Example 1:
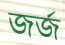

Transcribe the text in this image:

জর্জ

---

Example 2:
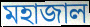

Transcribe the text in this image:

মহাজাল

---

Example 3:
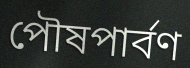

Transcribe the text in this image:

পৌষপার্বণ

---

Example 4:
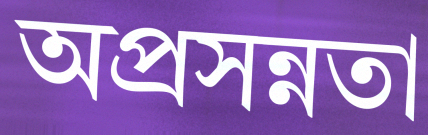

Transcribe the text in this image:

অপ্রসন্নতা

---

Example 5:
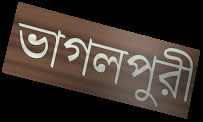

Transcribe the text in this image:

ভাগলপুরী